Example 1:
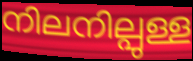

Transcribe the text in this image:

നിലനില്പുള്ള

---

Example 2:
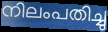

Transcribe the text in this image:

നിലംപതിച്ചു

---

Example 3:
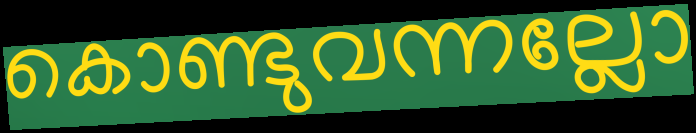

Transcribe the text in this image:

കൊണ്ടുവന്നല്ലോ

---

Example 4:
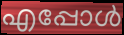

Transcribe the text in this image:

എപ്പോൾ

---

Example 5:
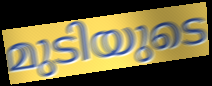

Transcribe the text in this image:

മുടിയുടെ